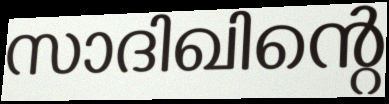
സാദിഖിന്റെ